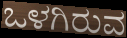
ಒಳಗಿರುವ